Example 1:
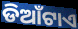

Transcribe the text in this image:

ଡିଆଁଟାଏ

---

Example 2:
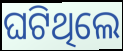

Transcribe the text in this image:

ଘଟିଥିଲେ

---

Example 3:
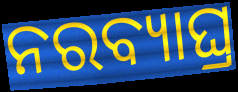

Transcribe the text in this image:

ନରବ୍ୟାଘ୍ର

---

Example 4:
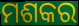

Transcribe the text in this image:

ମଶକର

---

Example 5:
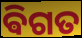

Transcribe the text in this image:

ଵିଗତ